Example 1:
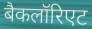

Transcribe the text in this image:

बैकलॉरिएट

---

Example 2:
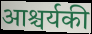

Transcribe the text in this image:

आश्चर्यकी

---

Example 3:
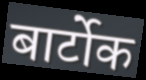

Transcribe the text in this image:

बार्टोक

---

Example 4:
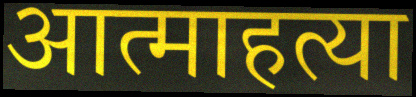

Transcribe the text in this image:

आत्माहत्या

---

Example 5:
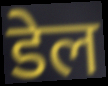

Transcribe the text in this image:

डेल